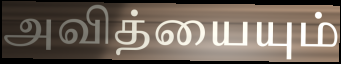
அவித்யையும்